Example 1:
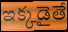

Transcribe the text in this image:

ఇక్కడైతే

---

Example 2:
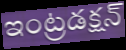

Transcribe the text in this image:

ఇంట్రడక్షన్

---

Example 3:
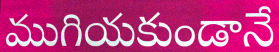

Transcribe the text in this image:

ముగియకుండానే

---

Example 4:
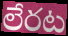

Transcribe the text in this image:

లేరట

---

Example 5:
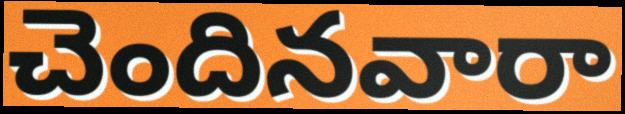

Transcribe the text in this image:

చెందినవారా